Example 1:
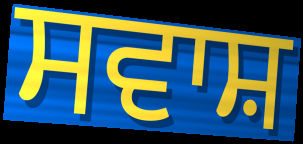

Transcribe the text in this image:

ਸਵਾਸ਼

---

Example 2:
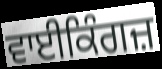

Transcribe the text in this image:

ਵਾਈਕਿੰਗਜ਼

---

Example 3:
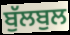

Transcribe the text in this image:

ਬੁੱਲਬੁਲ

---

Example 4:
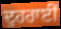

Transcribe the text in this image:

ਦੁਹਰਾਈਂ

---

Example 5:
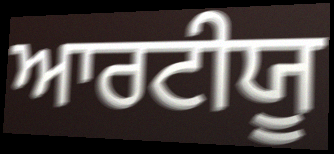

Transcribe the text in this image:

ਆਰਟੀਯੂ